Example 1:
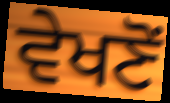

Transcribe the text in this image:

ਵੇਖਣੋਂ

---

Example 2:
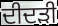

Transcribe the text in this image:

ਦੀਦੜੀ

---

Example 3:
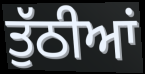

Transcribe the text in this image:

ਤੁੱਠੀਆਂ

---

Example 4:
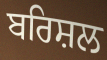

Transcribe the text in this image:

ਬਰਿਸ਼ਲ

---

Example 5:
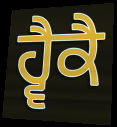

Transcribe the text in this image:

ਹ੍ਵੈਕੈ